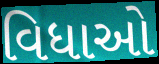
વિધાઓ